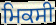
ਮਿਕਸੀ